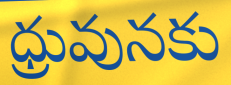
ధ్రువునకు